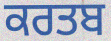
ਕਰਤਬ